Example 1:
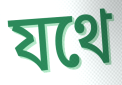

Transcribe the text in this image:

যথে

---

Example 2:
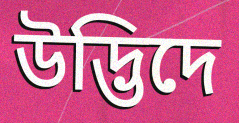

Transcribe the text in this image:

উদ্ভিদে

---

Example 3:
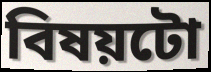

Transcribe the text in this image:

বিষয়টো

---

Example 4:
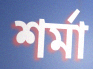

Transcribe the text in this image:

শৰ্মা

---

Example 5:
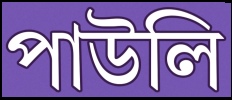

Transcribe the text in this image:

পাউলি